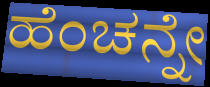
ಹೆಂಚನ್ನೇ